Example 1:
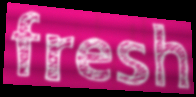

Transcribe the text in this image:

fresh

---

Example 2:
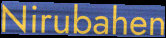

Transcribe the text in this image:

Nirubahen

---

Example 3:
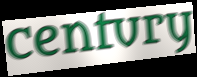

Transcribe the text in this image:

century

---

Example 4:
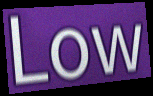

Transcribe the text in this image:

Low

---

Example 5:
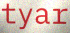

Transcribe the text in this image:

tyar